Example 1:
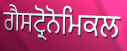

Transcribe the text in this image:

ਗੈਸਟ੍ਰੋਨੋਮਿਕਲ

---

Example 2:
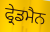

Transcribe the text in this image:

ਫ੍ਰੇਡਮੈਨ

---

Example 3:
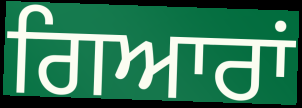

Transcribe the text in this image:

ਗਿਆਰਾਂ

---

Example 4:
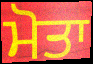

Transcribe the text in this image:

ਮੋਤਾ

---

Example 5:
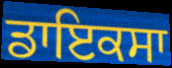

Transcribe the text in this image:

ਡਾਇਕਸਾ